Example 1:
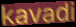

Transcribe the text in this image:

kavadi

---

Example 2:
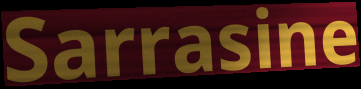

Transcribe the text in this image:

Sarrasine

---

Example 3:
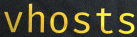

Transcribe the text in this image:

vhosts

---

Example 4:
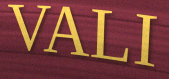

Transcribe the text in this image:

VALI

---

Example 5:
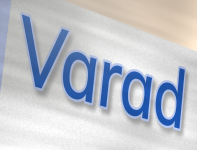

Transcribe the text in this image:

Varad